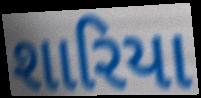
શારિયા